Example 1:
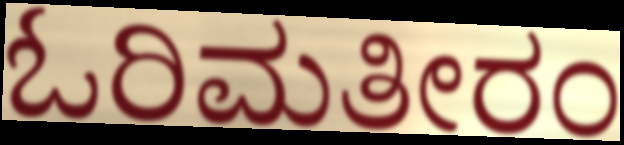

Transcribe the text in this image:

ಓರಿಮತೀರಂ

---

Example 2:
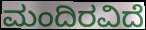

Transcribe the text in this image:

ಮಂದಿರವಿದೆ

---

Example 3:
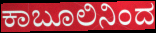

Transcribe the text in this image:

ಕಾಬೂಲಿನಿಂದ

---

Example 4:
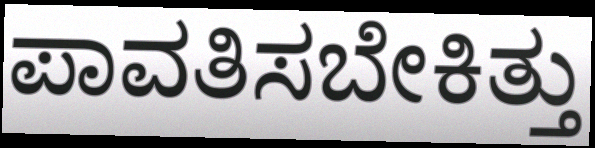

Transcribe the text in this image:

ಪಾವತಿಸಬೇಕಿತ್ತು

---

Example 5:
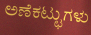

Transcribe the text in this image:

ಅಣೆಕಟ್ಟುಗಳು